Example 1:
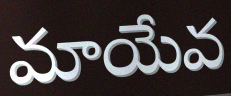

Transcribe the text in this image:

మాయేవ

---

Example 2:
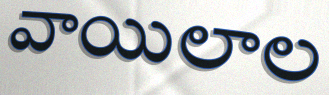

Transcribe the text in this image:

వాయిలాల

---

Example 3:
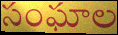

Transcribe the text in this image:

సంఘాల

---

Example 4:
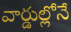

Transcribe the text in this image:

వార్డుల్లోనే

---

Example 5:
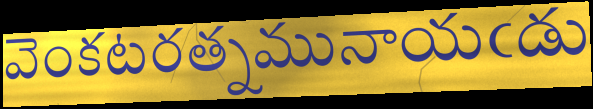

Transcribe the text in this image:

వెంకటరత్నమునాయఁడు